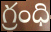
గ్రంధి